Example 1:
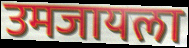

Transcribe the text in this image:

उमजायला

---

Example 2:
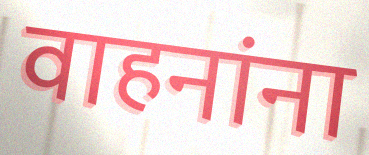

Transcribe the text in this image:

वाहनांना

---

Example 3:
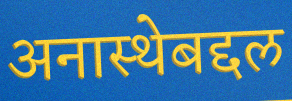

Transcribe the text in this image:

अनास्थेबद्दल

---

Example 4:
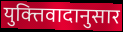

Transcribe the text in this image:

युक्तिवादानुसार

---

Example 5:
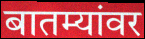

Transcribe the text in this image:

बातम्यांवर